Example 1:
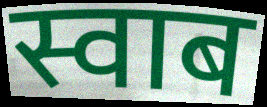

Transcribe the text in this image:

स्वाब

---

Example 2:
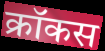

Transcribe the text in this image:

क्रॉकस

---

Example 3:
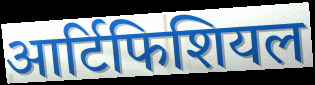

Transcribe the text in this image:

आर्टिफिशियल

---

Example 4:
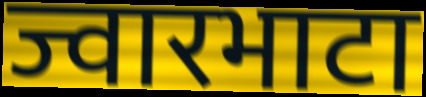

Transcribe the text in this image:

ज्वारभाटा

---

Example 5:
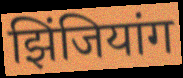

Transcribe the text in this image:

झिंजियांग